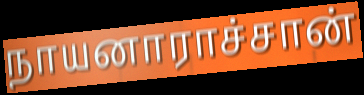
நாயனாராச்சான்